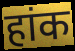
हांक